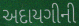
અદાયગીની